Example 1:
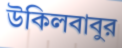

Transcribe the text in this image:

উকিলবাবুর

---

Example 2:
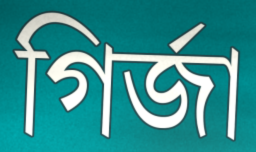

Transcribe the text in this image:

গির্জা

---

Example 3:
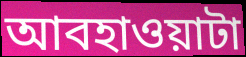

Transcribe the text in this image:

আবহাওয়াটা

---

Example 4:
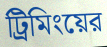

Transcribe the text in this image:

ট্রিমিংয়ের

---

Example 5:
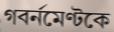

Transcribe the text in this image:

গবর্নমেণ্টকে